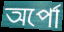
অর্পো